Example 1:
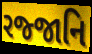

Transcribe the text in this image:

રજ્જાનિ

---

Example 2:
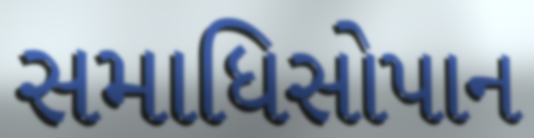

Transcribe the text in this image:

સમાધિસોપાન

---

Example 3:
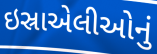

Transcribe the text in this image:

ઇસ્રાએલીઓનું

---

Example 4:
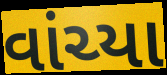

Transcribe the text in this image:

વાંચ્યા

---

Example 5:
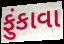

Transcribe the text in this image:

ફુંકાવા